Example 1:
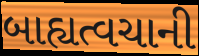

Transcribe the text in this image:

બાહ્યત્વચાની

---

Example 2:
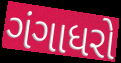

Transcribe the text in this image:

ગંગાધરો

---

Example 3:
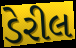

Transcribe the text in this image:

ડેરીલ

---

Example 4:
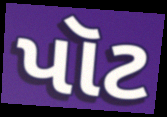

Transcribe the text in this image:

પૉટ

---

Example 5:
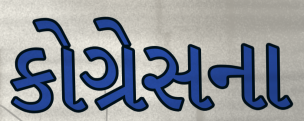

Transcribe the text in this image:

કોગ્રેસના